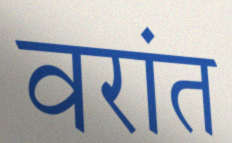
वरांत